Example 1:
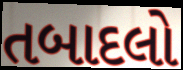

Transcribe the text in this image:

તબાદલો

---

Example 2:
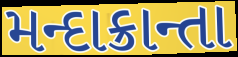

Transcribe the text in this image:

મન્દાક્રાન્તા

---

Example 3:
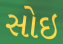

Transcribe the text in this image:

સોઇ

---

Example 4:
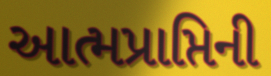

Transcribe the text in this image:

આત્મપ્રાપ્તિની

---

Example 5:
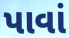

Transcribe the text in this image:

પાવાં